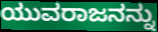
ಯುವರಾಜನನ್ನು